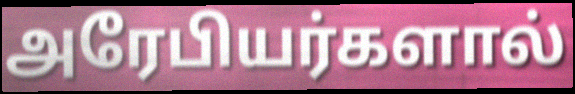
அரேபியர்களால்